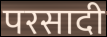
परसादी